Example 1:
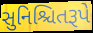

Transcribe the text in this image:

સુનિશ્ચિતરૂપે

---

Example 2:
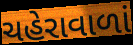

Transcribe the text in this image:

ચહેરાવાળાં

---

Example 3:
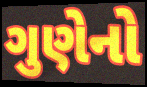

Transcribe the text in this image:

ગુણેનો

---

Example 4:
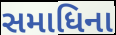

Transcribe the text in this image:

સમાધિના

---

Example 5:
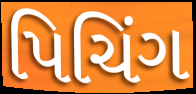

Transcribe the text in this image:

પિચિંગ